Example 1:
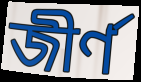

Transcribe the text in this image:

জীৰ্ণ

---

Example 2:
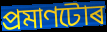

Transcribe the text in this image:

প্ৰমাণটোৰ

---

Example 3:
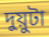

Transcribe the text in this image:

দুয়ুটা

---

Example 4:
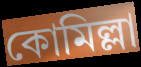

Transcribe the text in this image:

কোমিল্লা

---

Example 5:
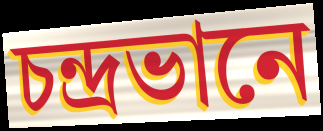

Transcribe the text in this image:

চন্দ্ৰভানে